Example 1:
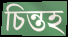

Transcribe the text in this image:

চিন্তহ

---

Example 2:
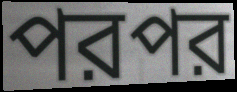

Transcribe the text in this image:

পরপর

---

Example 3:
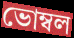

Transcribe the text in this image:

ভোম্বল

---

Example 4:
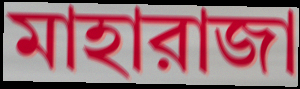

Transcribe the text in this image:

মাহারাজা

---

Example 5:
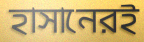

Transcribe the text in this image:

হাসানেরই